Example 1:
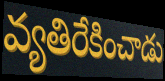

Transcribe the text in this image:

వ్యతిరేకించాడు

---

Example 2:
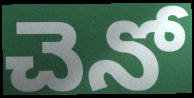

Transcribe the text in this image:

చెనో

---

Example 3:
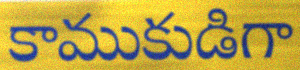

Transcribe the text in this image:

కాముకుడిగా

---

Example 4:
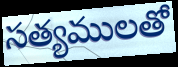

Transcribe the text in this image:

సత్యములతో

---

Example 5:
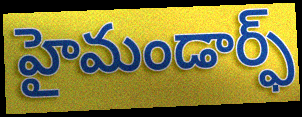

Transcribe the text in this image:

హైమండార్ఫ్